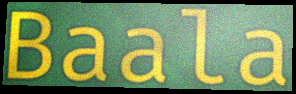
Baala